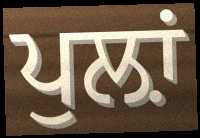
ਪੁਲ਼ਾਂ